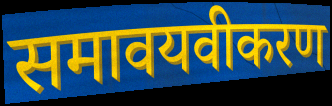
समावयवीकरण